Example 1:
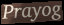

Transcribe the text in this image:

Prayog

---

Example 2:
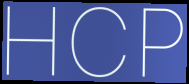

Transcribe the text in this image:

HCP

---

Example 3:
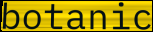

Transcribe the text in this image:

botanic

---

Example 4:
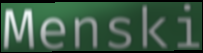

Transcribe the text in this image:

Menski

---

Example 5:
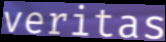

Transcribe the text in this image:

veritas